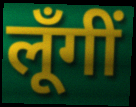
लूँगीं